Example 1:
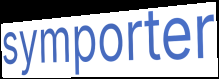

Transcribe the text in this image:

symporter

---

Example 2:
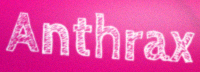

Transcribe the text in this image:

Anthrax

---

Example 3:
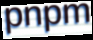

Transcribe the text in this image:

pnpm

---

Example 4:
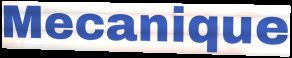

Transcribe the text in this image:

Mecanique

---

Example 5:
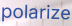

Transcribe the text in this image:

polarize